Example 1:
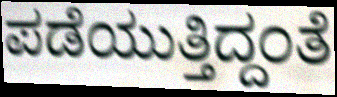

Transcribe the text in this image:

ಪಡೆಯುತ್ತಿದ್ದಂತೆ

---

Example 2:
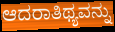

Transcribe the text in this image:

ಆದರಾತಿಥ್ಯವನ್ನು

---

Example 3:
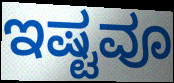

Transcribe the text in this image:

ಇಷ್ಟವೂ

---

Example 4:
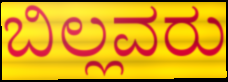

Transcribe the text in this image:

ಬಿಲ್ಲವರು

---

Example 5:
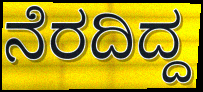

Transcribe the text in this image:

ನೆರದಿದ್ದ